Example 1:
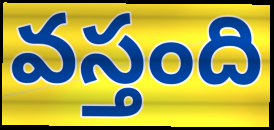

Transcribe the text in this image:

వస్తంది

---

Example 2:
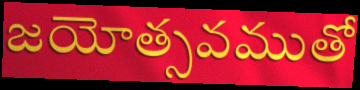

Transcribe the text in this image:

జయోత్సవముతో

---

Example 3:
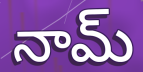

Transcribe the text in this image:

నామ్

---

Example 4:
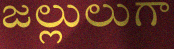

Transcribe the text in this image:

జల్లులుగా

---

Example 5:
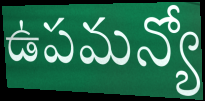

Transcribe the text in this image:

ఉపమన్యో